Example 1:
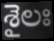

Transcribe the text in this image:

శైలః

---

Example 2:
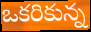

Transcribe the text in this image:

ఒకరికున్న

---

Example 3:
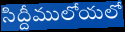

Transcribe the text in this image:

సిద్దీములోయలో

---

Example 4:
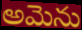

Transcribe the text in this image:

అమెను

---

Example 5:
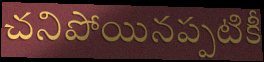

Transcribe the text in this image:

చనిపోయినప్పటికీ